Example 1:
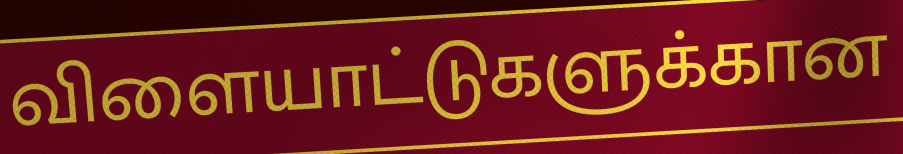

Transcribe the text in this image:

விளையாட்டுகளுக்கான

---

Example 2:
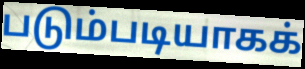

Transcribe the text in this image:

படும்படியாகக்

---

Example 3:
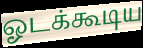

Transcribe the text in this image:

ஓடக்கூடிய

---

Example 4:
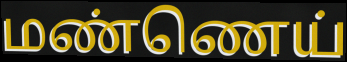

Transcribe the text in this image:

மண்ணெய்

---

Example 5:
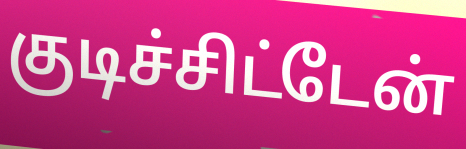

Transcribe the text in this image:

குடிச்சிட்டேன்